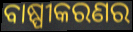
ବାଷ୍ପୀକରଣର